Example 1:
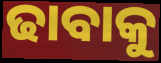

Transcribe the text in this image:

ଢାବାକୁ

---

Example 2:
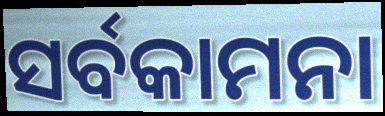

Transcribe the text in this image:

ସର୍ବକାମନା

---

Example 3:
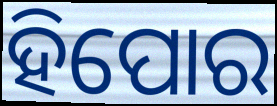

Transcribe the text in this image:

ହିପୋର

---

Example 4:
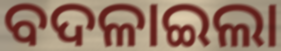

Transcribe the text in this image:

ବଦଳାଇଲା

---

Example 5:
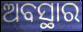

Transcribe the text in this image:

ଅବସ୍ଥାର